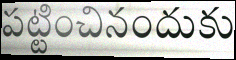
పట్టించినందుకు